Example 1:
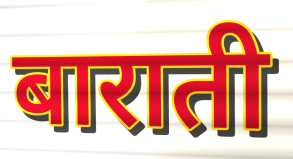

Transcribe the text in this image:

बाराती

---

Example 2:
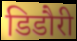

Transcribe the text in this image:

डिडौरी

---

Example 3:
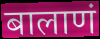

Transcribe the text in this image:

बालाणं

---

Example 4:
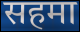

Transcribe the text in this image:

सहमा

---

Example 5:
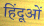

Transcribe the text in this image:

हिंदूओं